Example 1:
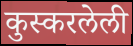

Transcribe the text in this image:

कुस्करलेली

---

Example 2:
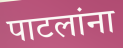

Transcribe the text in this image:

पाटलांना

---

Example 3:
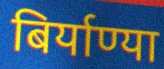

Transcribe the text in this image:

बिर्याण्या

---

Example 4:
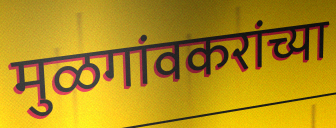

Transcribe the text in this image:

मुळगांवकरांच्या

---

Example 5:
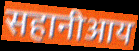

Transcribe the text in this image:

सहानीआय